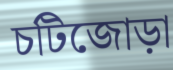
চটিজোড়া